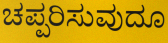
ಚಪ್ಪರಿಸುವುದೂ